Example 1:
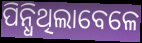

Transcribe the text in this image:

ପିନ୍ଧିଥିଲାବେଳେ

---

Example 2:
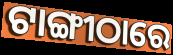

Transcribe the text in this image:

ଟାଙ୍ଗୀଠାରେ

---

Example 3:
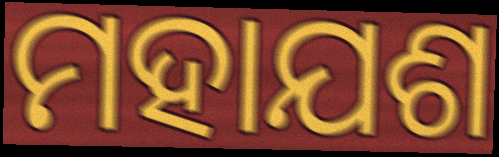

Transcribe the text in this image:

ମହାଯଶ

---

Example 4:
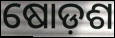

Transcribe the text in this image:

ଷୋଡ଼ଶ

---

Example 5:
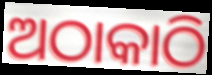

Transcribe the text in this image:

ଅଠାକାଠି